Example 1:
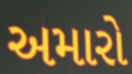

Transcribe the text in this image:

અમારો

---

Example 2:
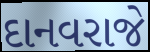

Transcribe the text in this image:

દાનવરાજે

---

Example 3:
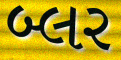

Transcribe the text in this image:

બ્લર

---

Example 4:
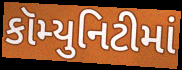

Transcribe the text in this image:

કૉમ્યુનિટીમાં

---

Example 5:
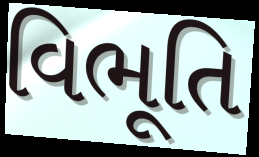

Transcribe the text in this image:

વિભૂતિ